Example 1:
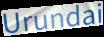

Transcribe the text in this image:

Urundai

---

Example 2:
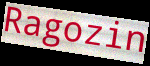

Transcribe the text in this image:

Ragozin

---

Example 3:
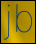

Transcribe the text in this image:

jb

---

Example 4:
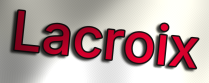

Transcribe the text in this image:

Lacroix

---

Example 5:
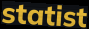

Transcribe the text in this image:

statist